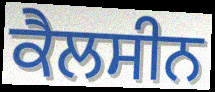
ਕੈਲਸੀਨ